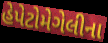
હેપેટોમેગેલીના